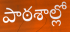
పాఠశాల్లో